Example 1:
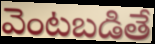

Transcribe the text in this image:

వెంటబడితే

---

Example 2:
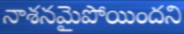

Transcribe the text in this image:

నాశనమైపోయిందని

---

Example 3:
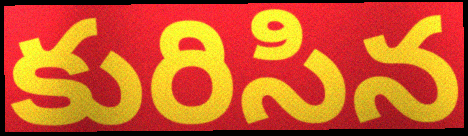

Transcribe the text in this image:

కురిసిన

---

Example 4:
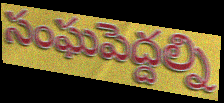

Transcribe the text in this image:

సంఘపెద్దల్ని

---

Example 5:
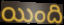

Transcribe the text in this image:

యింది